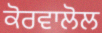
ਕੋਰਵਾਲੋਲ